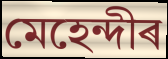
মেহেন্দীৰ